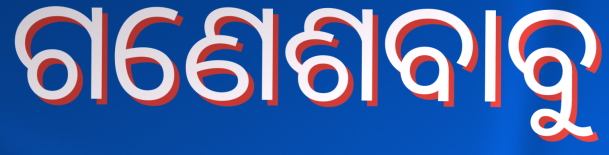
ଗଣେଶବାବୁ